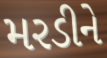
મરડીને